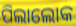
ପିଲାଲୋକ